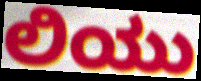
ಲಿಯು